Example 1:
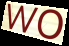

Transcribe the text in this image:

WO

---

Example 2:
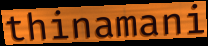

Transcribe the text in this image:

thinamani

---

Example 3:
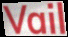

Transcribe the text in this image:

Vail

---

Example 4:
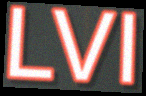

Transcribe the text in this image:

LVI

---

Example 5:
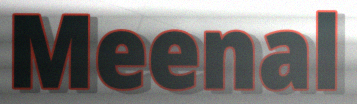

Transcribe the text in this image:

Meenal